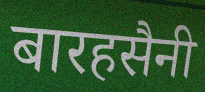
बारहसैनी